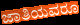
ಜಾತಿಯವರೂ